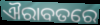
ଐରାବତରେ